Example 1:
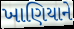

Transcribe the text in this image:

ખાણિયાને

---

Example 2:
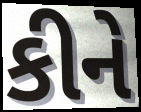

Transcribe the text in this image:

કીને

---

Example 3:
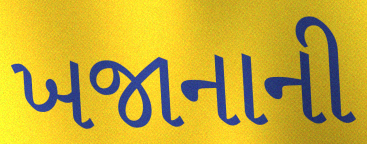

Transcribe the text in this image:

ખજાનાની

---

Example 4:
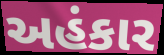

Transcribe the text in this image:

અહંકાર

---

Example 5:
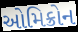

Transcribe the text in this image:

ઓમિક્રોન